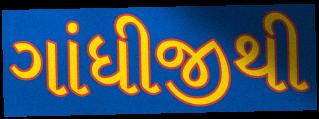
ગાંધીજીથી